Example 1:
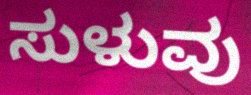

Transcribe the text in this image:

ಸುಳುವು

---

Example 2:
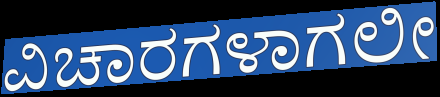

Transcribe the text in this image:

ವಿಚಾರಗಳಾಗಲೀ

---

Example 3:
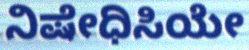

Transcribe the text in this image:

ನಿಷೇಧಿಸಿಯೇ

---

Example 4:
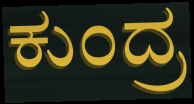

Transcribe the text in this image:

ಕುಂದ್ರ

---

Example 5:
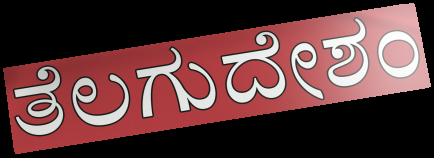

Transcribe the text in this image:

ತೆಲಗುದೇಶಂ